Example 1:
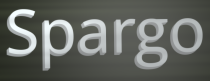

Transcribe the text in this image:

Spargo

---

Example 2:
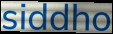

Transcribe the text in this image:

siddho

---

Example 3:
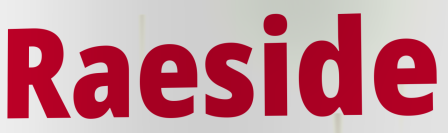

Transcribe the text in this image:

Raeside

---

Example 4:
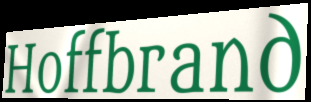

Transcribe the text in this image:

Hoffbrand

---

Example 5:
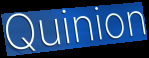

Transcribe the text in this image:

Quinion